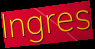
Ingres